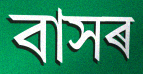
বাসৰ